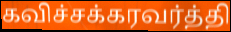
கவிச்சக்கரவர்த்தி